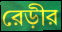
রেড়ীর